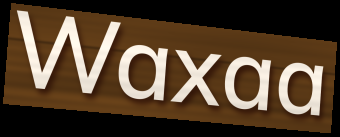
Waxaa